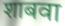
शाबवा